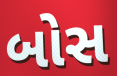
બોસ